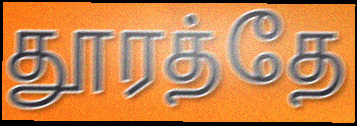
தூரத்தே